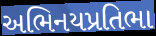
અભિનયપ્રતિભા